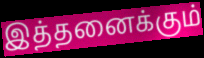
இத்தனைக்கும்